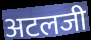
अटलजी